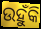
ଉହୁଁକି